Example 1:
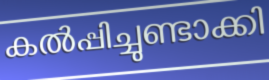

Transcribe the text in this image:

കൽപ്പിച്ചുണ്ടാക്കി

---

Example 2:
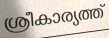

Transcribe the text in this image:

ശ്രീകാര്യത്ത്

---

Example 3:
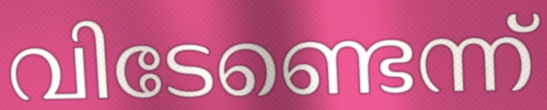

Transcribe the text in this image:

വിടേണ്ടെന്ന്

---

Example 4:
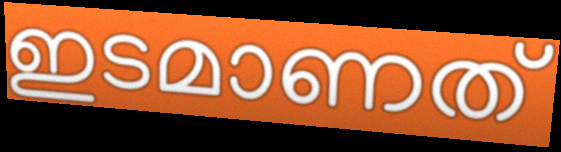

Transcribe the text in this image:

ഇടമാണത്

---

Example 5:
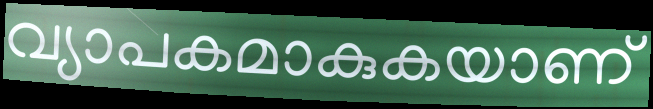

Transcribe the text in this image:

വ്യാപകമാകുകയാണ്